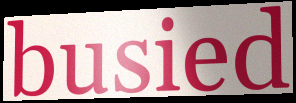
busied